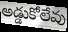
అడ్డుకోలేవు